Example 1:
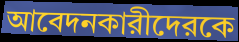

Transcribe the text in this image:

আবেদনকারীদেরকে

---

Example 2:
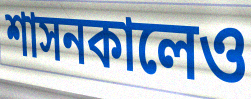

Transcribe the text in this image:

শাসনকালেও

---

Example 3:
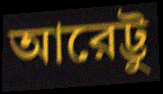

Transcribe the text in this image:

আরেট্টু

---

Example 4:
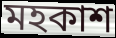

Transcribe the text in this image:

মহকাশ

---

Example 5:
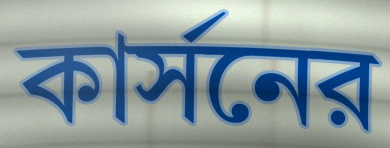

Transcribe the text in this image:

কার্সনের